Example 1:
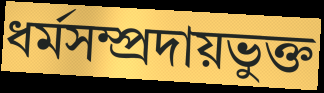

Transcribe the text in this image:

ধর্মসম্প্রদায়ভুক্ত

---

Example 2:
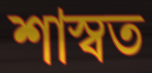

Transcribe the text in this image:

শাস্বত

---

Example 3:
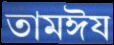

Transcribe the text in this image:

তামঈয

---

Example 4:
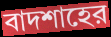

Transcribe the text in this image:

বাদশাহের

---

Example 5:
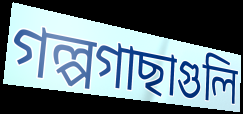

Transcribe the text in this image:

গল্পগাছাগুলি